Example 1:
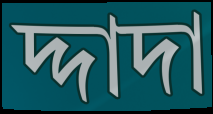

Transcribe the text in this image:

দ্দাদা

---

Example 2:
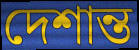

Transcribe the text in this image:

দেশান্ত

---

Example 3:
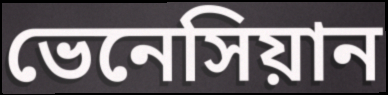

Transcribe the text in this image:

ভেনেসিয়ান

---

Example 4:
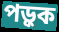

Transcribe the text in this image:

পড়ুক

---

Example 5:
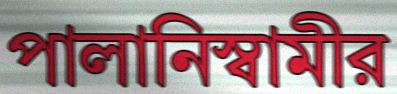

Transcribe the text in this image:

পালানিস্বামীর